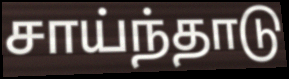
சாய்ந்தாடு